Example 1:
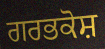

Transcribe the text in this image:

ਗਰਭਕੋਸ਼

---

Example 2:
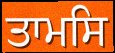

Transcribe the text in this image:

ਤਾਮਸਿ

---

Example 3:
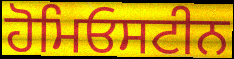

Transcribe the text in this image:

ਹੋਮਿਓਸਟੀਨ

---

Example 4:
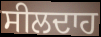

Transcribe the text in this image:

ਸੀਲਦਾਹ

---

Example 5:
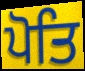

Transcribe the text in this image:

ਪੋਤਿ